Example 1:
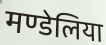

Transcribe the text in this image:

मण्डेलिया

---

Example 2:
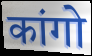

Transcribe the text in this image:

कांगो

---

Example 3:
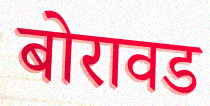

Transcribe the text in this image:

बोरावड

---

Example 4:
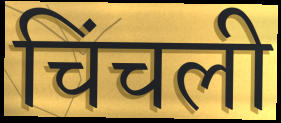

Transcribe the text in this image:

चिंचली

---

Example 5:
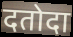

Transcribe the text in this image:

दतोदा